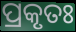
ପ୍ରକୃତଃ